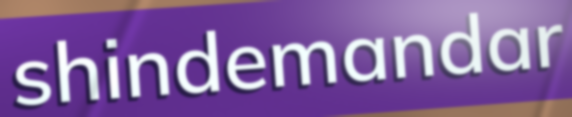
shindemandar